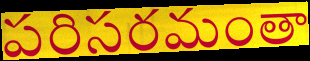
పరిసరమంతా